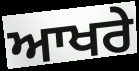
ਆਖਰੇ